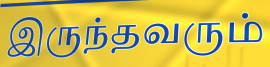
இருந்தவரும்